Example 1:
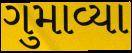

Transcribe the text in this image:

ગુમાવ્યા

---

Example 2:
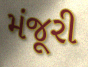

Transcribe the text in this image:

મંજૂરી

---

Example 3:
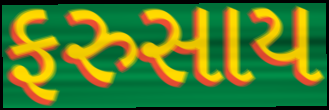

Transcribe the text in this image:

ફરુસાય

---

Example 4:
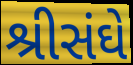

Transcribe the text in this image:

શ્રીસંઘે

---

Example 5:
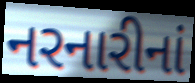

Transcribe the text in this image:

નરનારીનાં